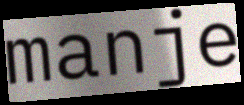
manje